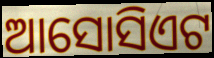
ଆସୋସିଏଟ